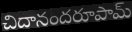
చిదానందరూపామ్